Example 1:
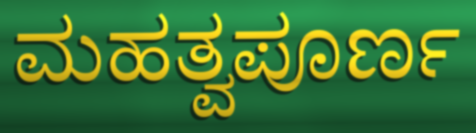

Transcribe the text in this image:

ಮಹತ್ವಪೂರ್ಣ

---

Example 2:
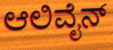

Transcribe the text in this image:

ಆಲಿವೈನ್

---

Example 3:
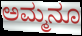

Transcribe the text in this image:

ಅಮ್ಮನೂ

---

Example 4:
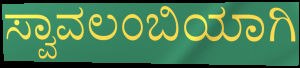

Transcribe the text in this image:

ಸ್ವಾವಲಂಬಿಯಾಗಿ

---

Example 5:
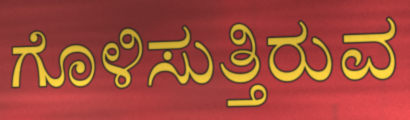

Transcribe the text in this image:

ಗೊಳಿಸುತ್ತಿರುವ